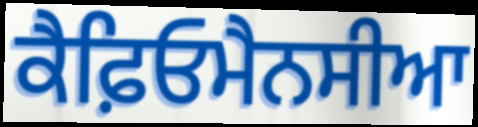
ਕੈਫ਼ਿਓਮੈਨਸੀਆ